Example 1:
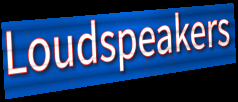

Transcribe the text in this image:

Loudspeakers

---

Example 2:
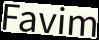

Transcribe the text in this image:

Favim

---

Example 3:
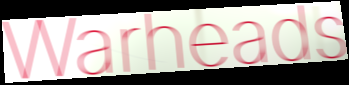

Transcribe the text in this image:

Warheads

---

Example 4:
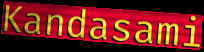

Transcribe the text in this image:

Kandasami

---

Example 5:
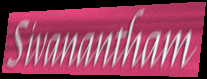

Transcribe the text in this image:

Sivanantham